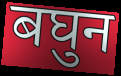
बघुन